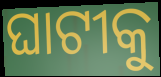
ଘାଟୀକୁ